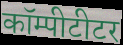
कॉम्पीटीटर